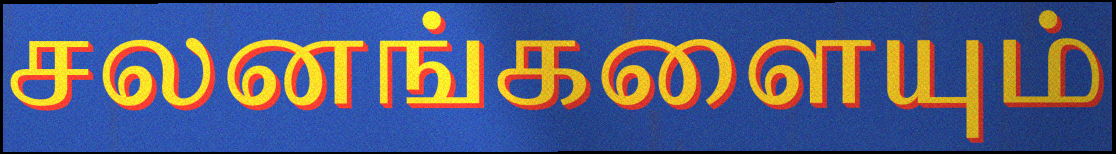
சலனங்களையும்